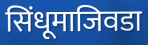
सिंधूमाजिवडा